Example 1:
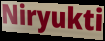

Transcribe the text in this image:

Niryukti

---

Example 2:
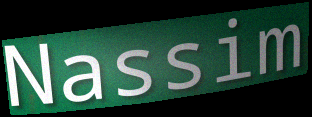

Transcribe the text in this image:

Nassim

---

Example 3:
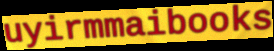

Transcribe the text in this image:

uyirmmaibooks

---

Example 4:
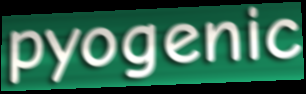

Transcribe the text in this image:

pyogenic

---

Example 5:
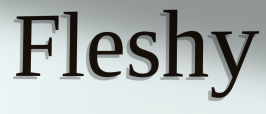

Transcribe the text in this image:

Fleshy